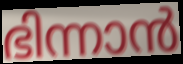
ഭിന്നാൻ